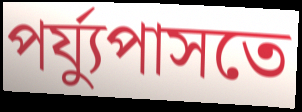
পর্য্যুপাসতে